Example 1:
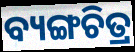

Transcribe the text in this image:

ବ୍ୟଙ୍ଗଚିତ୍ର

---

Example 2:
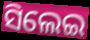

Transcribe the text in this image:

ସିଲେଇ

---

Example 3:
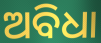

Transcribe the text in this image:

ଅବିଧା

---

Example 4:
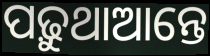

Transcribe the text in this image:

ପଢ଼ୁଥାଆନ୍ତେ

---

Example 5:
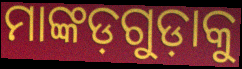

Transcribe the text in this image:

ମାଙ୍କଡ଼ଗୁଡ଼ାକୁ